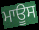
ਮਾਊਸ